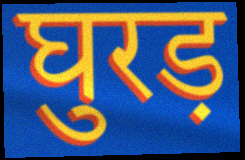
घुरड़